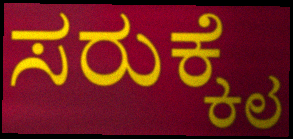
ಸರುಕ್ಕೈ